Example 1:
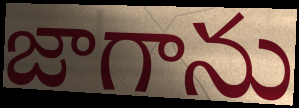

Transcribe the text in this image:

జాగాను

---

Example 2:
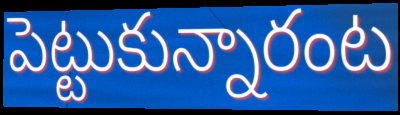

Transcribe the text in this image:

పెట్టుకున్నారంట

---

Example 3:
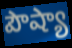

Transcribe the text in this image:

పౌష్యా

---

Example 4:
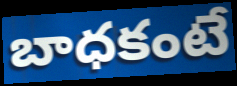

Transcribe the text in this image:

బాధకంటే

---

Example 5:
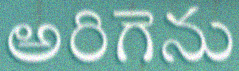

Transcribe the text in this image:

అరిగెను